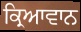
ਕ੍ਰਿਆਵਾਨ